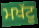
ਮਖੱਟੂ